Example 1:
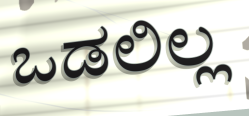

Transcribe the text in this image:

ಒಡಲಿಲ್ಲ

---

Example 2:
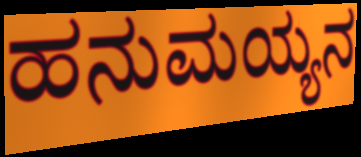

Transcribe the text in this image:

ಹನುಮಯ್ಯನ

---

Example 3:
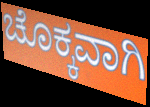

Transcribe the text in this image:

ಚೊಕ್ಕವಾಗಿ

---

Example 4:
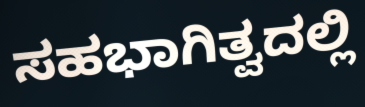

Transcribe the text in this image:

ಸಹಭಾಗಿತ್ವದಲ್ಲಿ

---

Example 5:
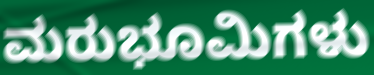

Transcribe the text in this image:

ಮರುಭೂಮಿಗಳು